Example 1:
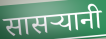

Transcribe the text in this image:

सासऱ्यानी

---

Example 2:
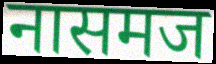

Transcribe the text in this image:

नासमज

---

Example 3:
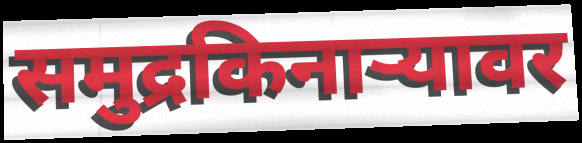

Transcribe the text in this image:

समुद्रकिनाऱ्यावर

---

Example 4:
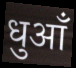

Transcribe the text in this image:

धुआँ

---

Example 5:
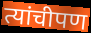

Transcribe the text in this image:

त्यांचीपण